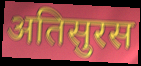
अतिसुरस